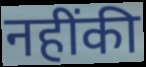
नहींकी